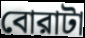
বোরাটা